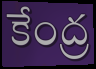
కేంద్ర